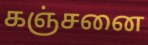
கஞ்சனை